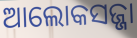
ଆଲୋକସଜ୍ଜା